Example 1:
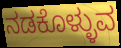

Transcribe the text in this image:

ನಡಕೊಳ್ಳುವ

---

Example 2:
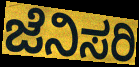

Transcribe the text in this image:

ಜೆನಿಸರಿ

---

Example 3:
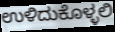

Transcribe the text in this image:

ಉಳಿದುಕೊಳ್ಳಲಿ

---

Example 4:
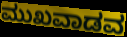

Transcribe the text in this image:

ಮುಖವಾಡವ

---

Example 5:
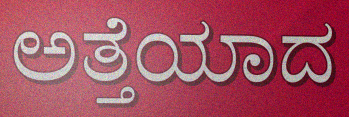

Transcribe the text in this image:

ಅತ್ತೆಯಾದ